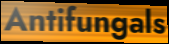
Antifungals